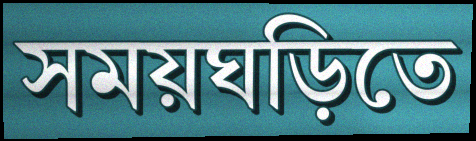
সময়ঘড়িতে